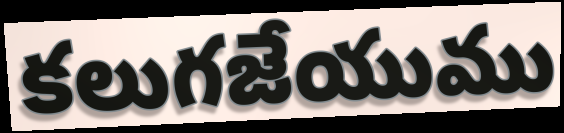
కలుగజేయుము